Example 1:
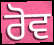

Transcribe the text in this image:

ਰੋਵ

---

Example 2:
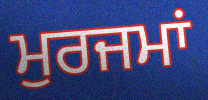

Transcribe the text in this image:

ਮੁਰਜਮਾਂ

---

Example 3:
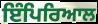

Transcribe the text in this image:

ਇੰਪਿਰਿਆਲ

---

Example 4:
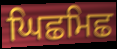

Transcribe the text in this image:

ਘਿਛਮਿਛ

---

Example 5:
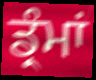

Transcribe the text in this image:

ਡ੍ਰੰਮਾਂ